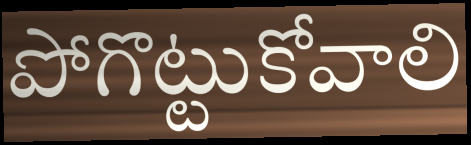
పోగొట్టుకోవాలి